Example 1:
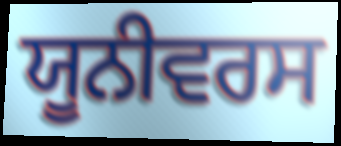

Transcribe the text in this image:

ਯੂਨੀਵਰਸ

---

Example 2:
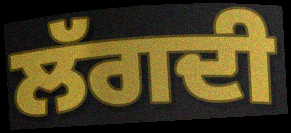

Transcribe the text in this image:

ਲੱਗਦੀ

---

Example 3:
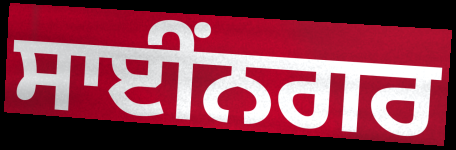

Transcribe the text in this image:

ਸਾਈਂਨਗਰ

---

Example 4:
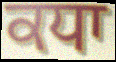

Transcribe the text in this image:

ਕਧਾ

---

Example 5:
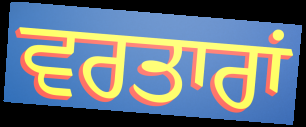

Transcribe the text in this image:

ਵਰਤਾਰਾਂ